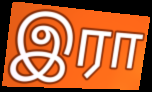
இரா